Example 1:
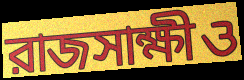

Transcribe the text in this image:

রাজসাক্ষীও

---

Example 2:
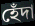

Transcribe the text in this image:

হেঁদা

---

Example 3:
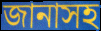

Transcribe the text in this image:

জানাসহ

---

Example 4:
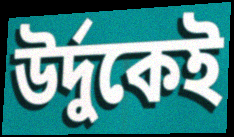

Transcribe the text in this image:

উর্দুকেই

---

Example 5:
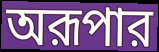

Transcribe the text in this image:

অরূপার